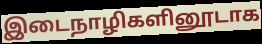
இடைநாழிகளினூடாக